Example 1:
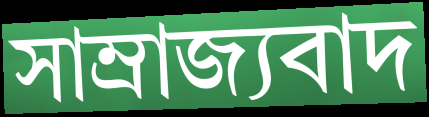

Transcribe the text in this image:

সাম্ৰাজ্যবাদ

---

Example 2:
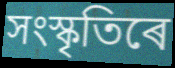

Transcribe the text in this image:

সংস্কৃতিৰে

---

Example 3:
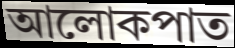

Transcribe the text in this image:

আলোকপাত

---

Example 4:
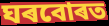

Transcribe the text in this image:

ঘৰবোৰত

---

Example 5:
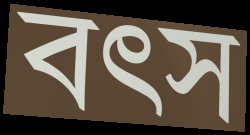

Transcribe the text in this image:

বৎস